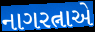
નાગરત્નાએ